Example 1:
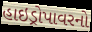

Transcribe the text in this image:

હાઇડ્રોપાવરનો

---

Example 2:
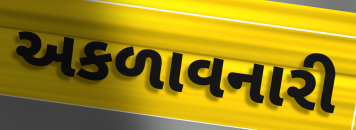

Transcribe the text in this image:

અકળાવનારી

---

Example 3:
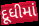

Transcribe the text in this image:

દૂધીમાં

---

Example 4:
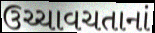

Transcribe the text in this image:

ઉચ્ચાવચતાનાં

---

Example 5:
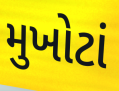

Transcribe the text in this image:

મુખોટાં